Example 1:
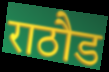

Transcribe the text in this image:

राठौड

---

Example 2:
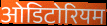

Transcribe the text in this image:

ओडिटोरियम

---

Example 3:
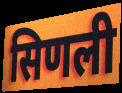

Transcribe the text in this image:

सिणली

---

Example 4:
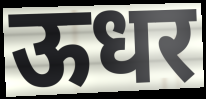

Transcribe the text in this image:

ऊधर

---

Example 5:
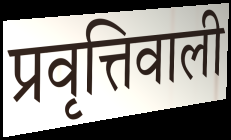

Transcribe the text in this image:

प्रवृत्तिवाली